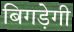
बिगड़ेगी